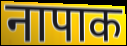
नापाक